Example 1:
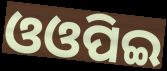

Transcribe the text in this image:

ଓଓପିଇ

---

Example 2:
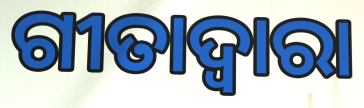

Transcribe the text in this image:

ଗୀତାଦ୍ଵାରା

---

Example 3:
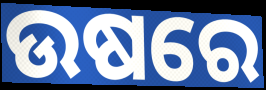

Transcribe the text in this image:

ଉଷରେ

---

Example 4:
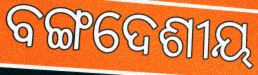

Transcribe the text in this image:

ବଙ୍ଗଦେଶୀୟ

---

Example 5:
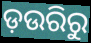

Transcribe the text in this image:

ଡ଼ଉରିରୁ